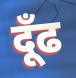
दूँढ